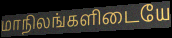
மாநிலங்களிடையே